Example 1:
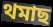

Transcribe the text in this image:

থমাছ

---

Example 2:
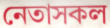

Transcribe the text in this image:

নেতাসকল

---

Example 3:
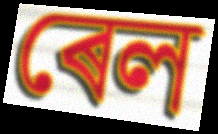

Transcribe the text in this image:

ৰেল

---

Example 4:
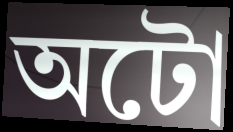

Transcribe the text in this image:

অটো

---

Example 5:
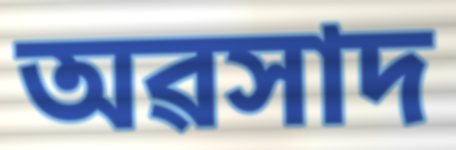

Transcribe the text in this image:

অৱসাদ